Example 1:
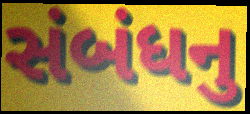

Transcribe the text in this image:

સંબંધનુ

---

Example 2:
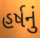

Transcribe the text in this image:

હર્ષનું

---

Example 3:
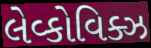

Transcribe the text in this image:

લેવ્કોવિક્ઝ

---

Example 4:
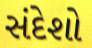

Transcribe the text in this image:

સંદેશો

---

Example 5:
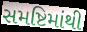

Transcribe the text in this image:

સમષ્ટિમાંથી